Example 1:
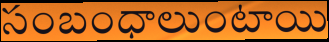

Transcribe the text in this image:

సంబంధాలుంటాయి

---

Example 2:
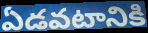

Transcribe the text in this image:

ఏడవటానికి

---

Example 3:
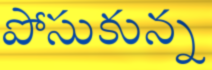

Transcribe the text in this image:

పోసుకున్న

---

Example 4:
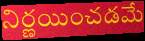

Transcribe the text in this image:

నిర్ణయించడమే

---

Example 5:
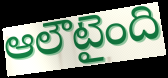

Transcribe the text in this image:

ఆలౌటైంది